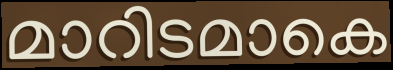
മാറിടമാകെ